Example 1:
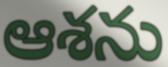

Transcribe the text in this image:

ఆశను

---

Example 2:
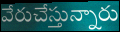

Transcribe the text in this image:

వేరుచేస్తున్నారు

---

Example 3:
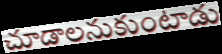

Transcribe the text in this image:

చూడాలనుకుంటాడు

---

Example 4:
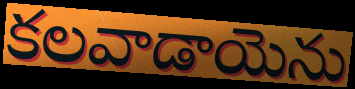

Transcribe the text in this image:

కలవాడాయెను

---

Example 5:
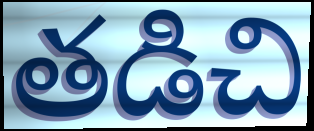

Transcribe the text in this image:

తడిచి